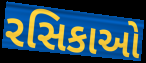
રસિકાઓ